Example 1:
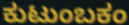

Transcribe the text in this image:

ಕುಟುಂಬಕಂ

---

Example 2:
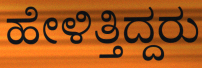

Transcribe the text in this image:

ಹೇಳಿತ್ತಿದ್ದರು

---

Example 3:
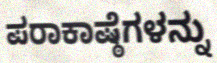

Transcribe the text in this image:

ಪರಾಕಾಷ್ಠೆಗಳನ್ನು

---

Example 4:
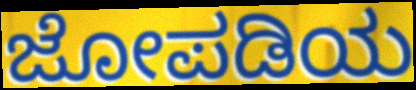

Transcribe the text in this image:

ಜೋಪಡಿಯ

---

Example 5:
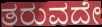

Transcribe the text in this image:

ತರುವದೇ